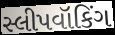
સ્લીપવૉકિંગ